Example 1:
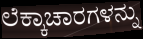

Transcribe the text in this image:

ಲೆಕ್ಕಾಚಾರಗಳನ್ನು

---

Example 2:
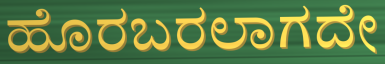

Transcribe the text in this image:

ಹೊರಬರಲಾಗದೇ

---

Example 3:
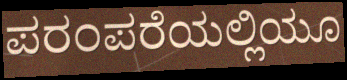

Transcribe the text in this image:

ಪರಂಪರೆಯಲ್ಲಿಯೂ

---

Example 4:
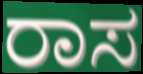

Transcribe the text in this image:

ರಾಸ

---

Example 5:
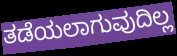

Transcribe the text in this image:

ತಡೆಯಲಾಗುವುದಿಲ್ಲ